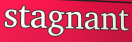
stagnant